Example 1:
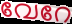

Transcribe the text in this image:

വേറേ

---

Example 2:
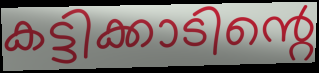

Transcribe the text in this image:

കട്ടിക്കാടിന്റെ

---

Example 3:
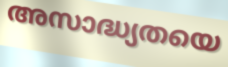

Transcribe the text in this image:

അസാദ്ധ്യതയെ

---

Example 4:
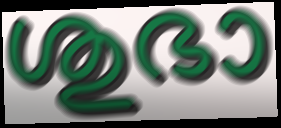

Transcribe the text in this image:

ശുഭാ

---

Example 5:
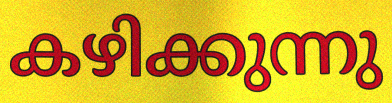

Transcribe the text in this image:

കഴിക്കുന്നു